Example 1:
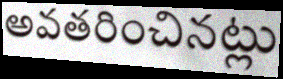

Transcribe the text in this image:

అవతరించినట్లు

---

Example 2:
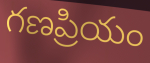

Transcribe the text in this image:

గణప్రియం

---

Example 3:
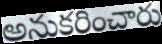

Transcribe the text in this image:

అనుకరించారు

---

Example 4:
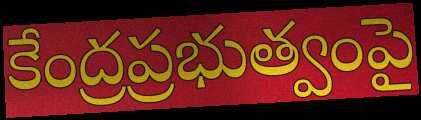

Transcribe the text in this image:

కేంద్రప్రభుత్వంపై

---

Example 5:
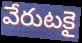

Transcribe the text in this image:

వేరుటకై